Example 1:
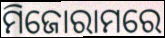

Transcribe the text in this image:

ମିଜୋରାମରେ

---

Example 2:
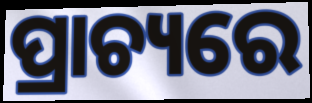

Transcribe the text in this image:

ପ୍ରାଚ୍ୟରେ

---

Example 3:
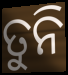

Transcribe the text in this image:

ତୁନି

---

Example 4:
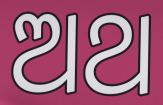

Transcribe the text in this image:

ଅଥ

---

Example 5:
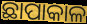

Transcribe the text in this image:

ଛାପାକାଳ